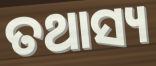
ତଥାସ୍ୟ